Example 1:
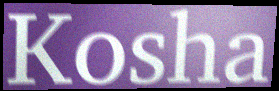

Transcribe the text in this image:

Kosha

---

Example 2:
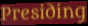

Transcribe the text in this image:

Presiding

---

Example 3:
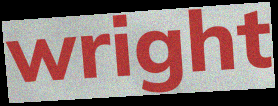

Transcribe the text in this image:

wright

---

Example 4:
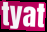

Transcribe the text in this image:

tyat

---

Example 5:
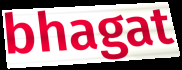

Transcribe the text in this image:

bhagat